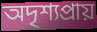
অদৃশ্যপ্ৰায়